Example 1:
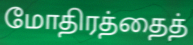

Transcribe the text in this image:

மோதிரத்தைத்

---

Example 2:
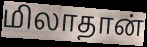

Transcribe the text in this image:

மிலாதான்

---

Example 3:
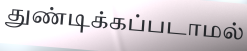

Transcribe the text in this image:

துண்டிக்கப்படாமல்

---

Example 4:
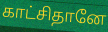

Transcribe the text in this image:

காட்சிதானே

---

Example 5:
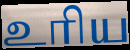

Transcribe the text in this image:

உரிய